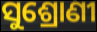
ସୁଶ୍ରୋଣୀ